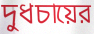
দুধচায়ের